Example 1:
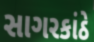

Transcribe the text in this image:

સાગરકાંઠે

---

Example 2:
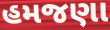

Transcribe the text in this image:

હમજણા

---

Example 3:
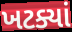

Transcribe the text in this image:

ખટક્યાં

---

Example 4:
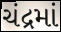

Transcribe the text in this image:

ચંદ્રમાં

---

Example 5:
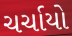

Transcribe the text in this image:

ચર્ચાયો